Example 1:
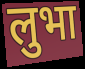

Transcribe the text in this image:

लुभा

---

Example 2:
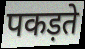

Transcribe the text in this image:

पकड़ते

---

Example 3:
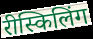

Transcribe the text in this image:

रीस्किलिंग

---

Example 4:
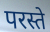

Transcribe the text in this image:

परस्ते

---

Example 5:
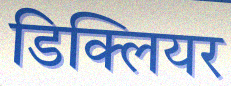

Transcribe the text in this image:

डिक्लियर